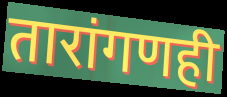
तारांगणही